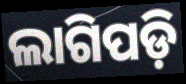
ଲାଗିପଡ଼ି